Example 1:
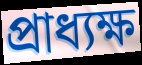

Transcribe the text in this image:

প্রাধ্যক্ষ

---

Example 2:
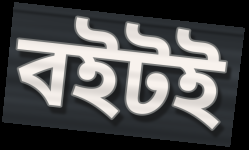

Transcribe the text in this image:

বইটই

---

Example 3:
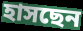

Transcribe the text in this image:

হাসছেন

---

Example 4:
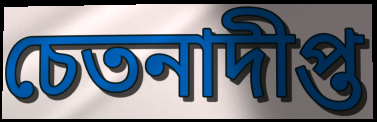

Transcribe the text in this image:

চেতনাদীপ্ত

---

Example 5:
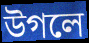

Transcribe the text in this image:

উগলে